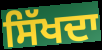
ਸਿੱਖਦਾ